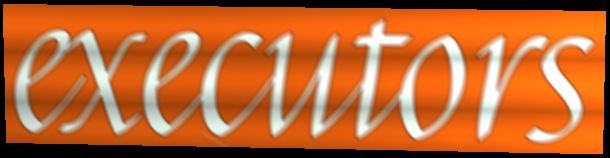
executors